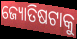
ଜ୍ୟୋତିଷଟାକୁ